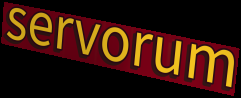
servorum